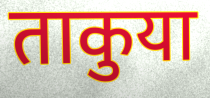
ताकुया